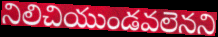
నిలిచియుండవలెనని